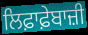
ਲਿਫ਼ਾਫ਼ੇਬਾਜ਼ੀ